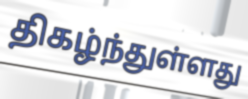
திகழ்ந்துள்ளது